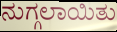
ನುಗ್ಗಲಾಯಿತು